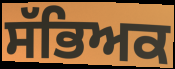
ਸੱਭਿਅਕ